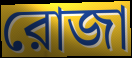
রোজা